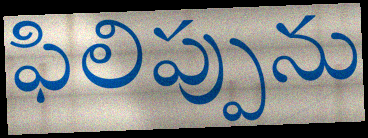
ఫిలిప్పును